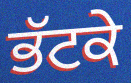
ਭੱਟਕੇ